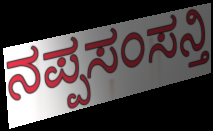
ನಪ್ಪಸಂಸನ್ತಿ